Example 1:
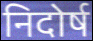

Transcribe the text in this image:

निदोर्ष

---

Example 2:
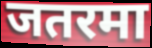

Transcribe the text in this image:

जतरमा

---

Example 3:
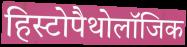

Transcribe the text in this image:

हिस्टोपैथोलॉजिक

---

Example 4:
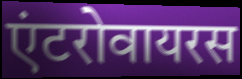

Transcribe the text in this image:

एंटरोवायरस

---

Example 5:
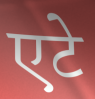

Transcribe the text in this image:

एटे